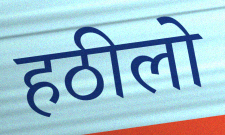
हठीलो